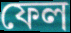
ফেল